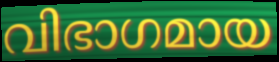
വിഭാഗമായ